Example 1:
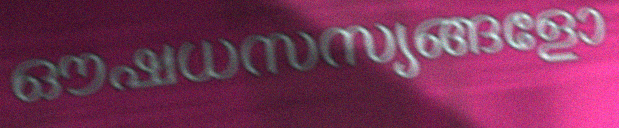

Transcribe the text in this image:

ഔഷധസസ്യങ്ങളോ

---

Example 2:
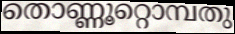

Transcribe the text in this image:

തൊണ്ണൂറ്റൊമ്പതു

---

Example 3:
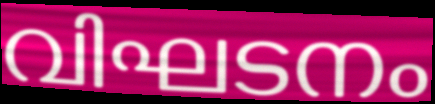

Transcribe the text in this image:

വിഘടനം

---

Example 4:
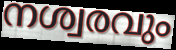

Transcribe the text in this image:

നശ്വരവും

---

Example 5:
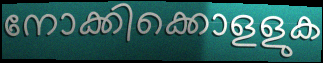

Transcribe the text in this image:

നോക്കിക്കൊളളുക